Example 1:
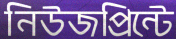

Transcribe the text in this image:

নিউজপ্রিন্টে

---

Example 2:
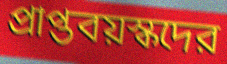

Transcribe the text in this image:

প্রাপ্তবয়স্কদের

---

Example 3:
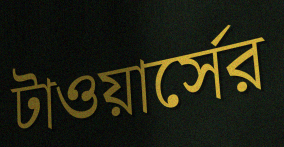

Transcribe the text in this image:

টাওয়ার্সের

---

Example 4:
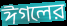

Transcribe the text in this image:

ঈগলের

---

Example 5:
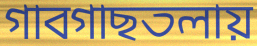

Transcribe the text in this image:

গাবগাছতলায়